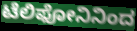
ಟೆಲಿಫೋನಿನಿಂದ